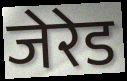
जेरेड